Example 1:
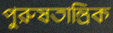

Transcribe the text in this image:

পুরুষতান্ত্রিক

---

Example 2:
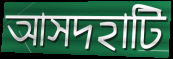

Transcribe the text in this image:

আসদহাটি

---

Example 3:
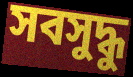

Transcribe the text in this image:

সবসুদ্ধু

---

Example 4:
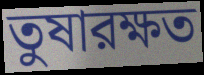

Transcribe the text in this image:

তুষারক্ষত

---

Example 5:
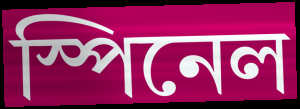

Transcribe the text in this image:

স্পিনেল